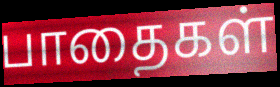
பாதைகள்